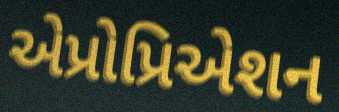
એપ્રોપ્રિએશન